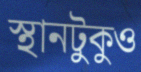
স্থানটুকুও